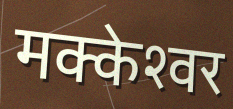
मक्केश्वर